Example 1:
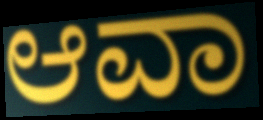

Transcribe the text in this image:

ಆವಾ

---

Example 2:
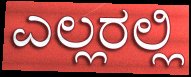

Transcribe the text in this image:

ಎಲ್ಲರಲ್ಲಿ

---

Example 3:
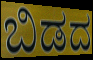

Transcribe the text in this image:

ಬಿಡದ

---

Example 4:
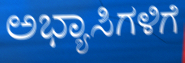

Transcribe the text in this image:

ಅಭ್ಯಾಸಿಗಳಿಗೆ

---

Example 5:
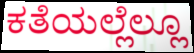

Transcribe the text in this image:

ಕತೆಯಲ್ಲೆಲ್ಲೂ